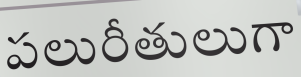
పలురీతులుగా